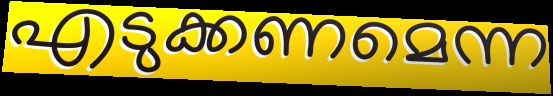
എടുക്കണമെന്ന